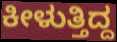
ಕೀಳುತ್ತಿದ್ದ